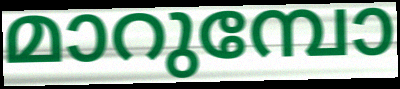
മാറുമ്പോ